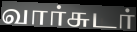
வார்சுடர்